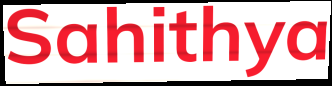
Sahithya